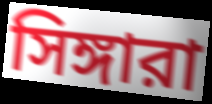
সিঙ্গারা